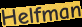
Helfman